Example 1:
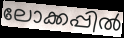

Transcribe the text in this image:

ലോക്കപ്പിൽ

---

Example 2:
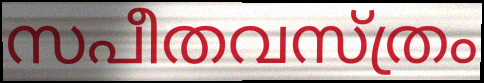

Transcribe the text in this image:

സപീതവസ്ത്രം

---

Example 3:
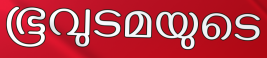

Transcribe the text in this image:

ഭൂവുടമയുടെ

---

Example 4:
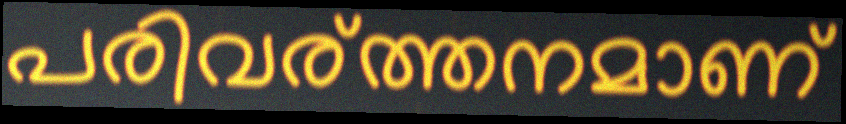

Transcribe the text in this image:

പരിവര്ത്തനമാണ്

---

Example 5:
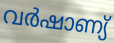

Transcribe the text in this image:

വർഷാണ്യ്